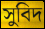
সুবিদ